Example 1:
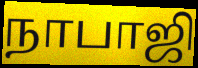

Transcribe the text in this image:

நாபாஜி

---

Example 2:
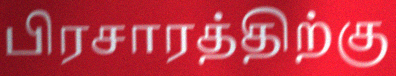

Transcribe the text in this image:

பிரசாரத்திற்கு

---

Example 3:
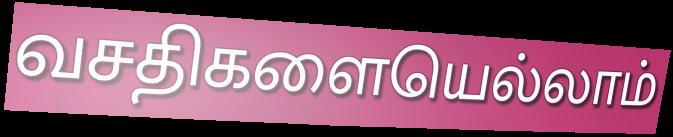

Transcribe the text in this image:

வசதிகளையெல்லாம்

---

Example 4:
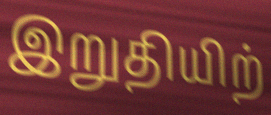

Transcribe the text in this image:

இறுதியிற்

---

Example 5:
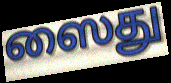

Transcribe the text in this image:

ஸைது